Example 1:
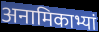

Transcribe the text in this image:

अनामिकाभ्यां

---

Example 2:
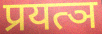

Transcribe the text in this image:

प्रयत्ञ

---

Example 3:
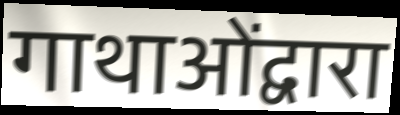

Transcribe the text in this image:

गाथाओंद्वारा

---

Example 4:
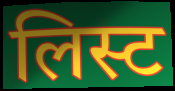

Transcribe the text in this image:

लिस्‍ट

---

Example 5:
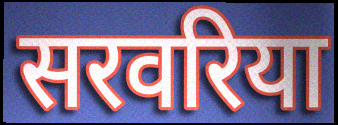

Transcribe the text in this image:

सरवरिया